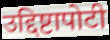
उद्दिष्टापोटी